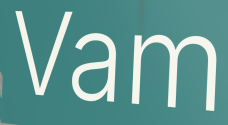
Vam